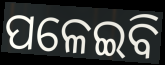
ପଳେଇବି